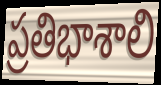
ప్రతిభాశాలి